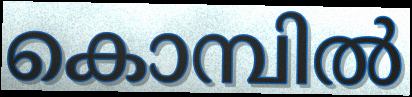
കൊമ്പിൽ